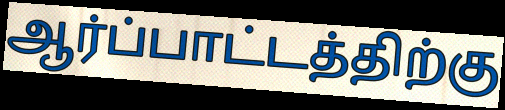
ஆர்ப்பாட்டத்திற்கு